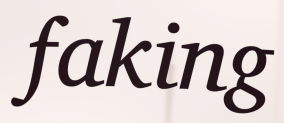
faking